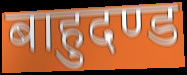
बाहुदण्ड